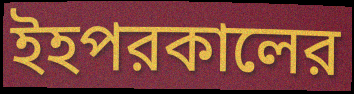
ইহপরকালের